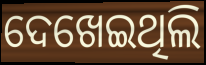
ଦେଖେଇଥିଲି